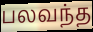
பலவந்த